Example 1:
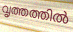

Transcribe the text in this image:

വൃത്തത്തിൽ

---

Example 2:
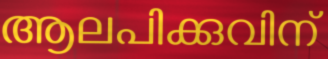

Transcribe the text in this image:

ആലപിക്കുവിന്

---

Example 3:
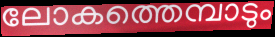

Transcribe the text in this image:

ലോകത്തെമ്പാടും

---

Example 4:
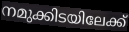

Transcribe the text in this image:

നമുക്കിടയിലേക്ക്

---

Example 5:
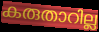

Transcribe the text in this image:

കരുതാറില്ല